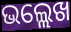
ଭଲ୍ଲେଖ